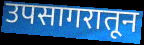
उपसागरातून